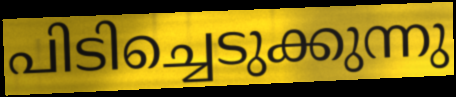
പിടിച്ചെടുക്കുന്നു